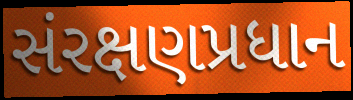
સંરક્ષણપ્રધાન